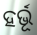
ହର୍ଭୂ